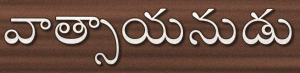
వాత్సాయనుడు